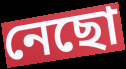
নেছো